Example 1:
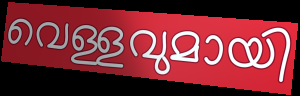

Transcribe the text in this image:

വെള്ളവുമായി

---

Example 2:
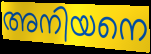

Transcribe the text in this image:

അനിയനെ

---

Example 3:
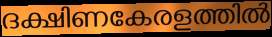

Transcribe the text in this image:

ദക്ഷിണകേരളത്തിൽ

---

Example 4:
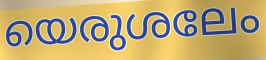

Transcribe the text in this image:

യെരുശലേം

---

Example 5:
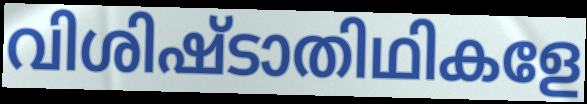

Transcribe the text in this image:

വിശിഷ്ടാതിഥികളേ